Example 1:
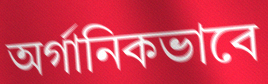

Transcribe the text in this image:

অর্গানিকভাবে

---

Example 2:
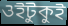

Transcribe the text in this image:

ওইটুকুই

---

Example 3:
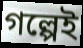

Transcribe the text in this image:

গল্পেই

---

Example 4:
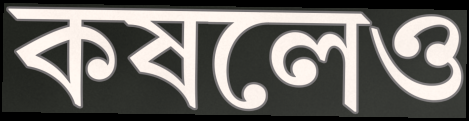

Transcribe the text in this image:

কষলেও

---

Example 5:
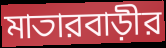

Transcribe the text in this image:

মাতারবাড়ীর